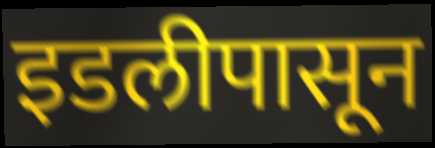
इडलीपासून